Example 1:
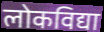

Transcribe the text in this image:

लोकविद्या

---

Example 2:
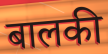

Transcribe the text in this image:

बालकी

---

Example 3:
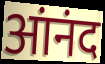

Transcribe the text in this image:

आंनंद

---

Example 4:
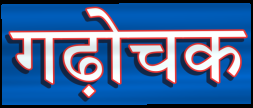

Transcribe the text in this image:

गढ़ोचक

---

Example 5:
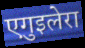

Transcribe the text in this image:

एगुइलेरा